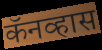
कॅनव्हास